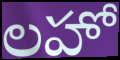
లహో